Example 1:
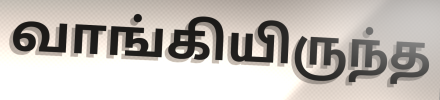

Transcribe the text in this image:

வாங்கியிருந்த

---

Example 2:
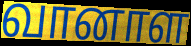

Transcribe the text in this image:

வானாள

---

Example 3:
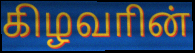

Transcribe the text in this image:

கிழவரின்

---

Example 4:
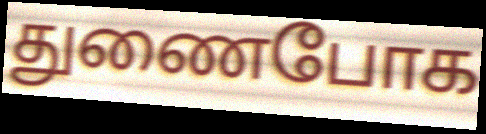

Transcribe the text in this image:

துணைபோக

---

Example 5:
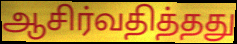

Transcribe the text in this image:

ஆசிர்வதித்தது